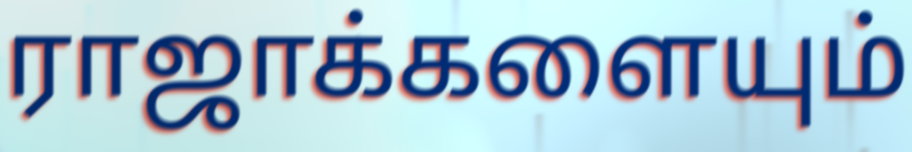
ராஜாக்களையும்